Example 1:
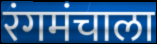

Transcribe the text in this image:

रंगमंचाला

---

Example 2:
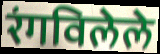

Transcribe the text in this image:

रंगविलेले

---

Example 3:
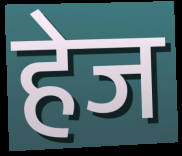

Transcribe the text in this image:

हेज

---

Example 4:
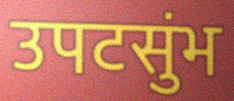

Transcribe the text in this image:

उपटसुंभ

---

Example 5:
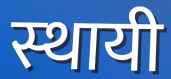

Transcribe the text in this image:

स्‍थायी